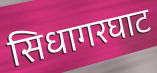
सिधागरघाट